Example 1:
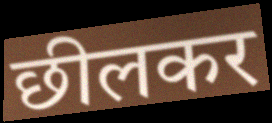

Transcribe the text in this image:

छीलकर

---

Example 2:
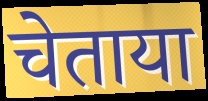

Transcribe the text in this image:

चेताया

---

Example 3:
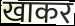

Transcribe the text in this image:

खाकर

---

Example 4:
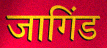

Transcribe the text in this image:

जागिंड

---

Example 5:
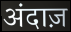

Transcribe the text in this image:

अंदाज़